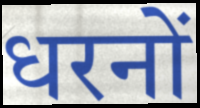
धरनों